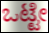
ಒಟ್ಟೇ